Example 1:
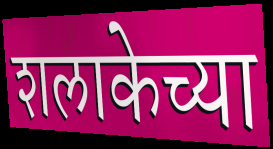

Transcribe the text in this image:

शलाकेच्या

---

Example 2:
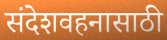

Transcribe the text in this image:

संदेशवहनासाठी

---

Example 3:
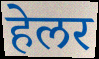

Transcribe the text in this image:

हेलर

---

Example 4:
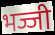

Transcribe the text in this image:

भज्जी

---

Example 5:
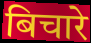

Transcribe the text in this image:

बिचारे